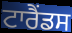
ਟਾਰੈਂਡਸ